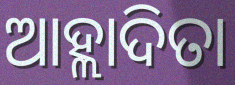
ଆହ୍ଲାଦିତା